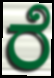
ರೆ